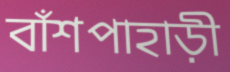
বাঁশপাহাড়ী